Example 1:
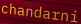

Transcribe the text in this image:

chandarni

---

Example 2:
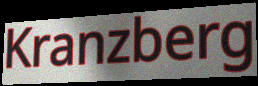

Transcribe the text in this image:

Kranzberg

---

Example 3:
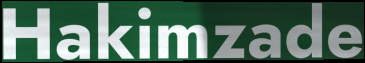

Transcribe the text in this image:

Hakimzade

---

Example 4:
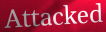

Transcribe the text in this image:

Attacked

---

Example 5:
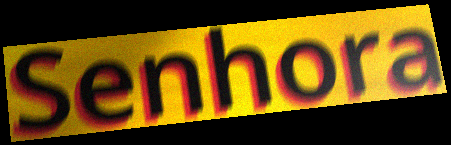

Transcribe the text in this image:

Senhora